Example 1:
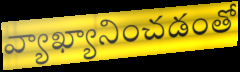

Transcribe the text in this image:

వ్యాఖ్యానించడంతో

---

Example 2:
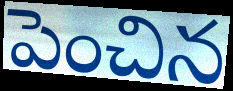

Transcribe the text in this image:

పెంచిన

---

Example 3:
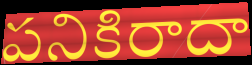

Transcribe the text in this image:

పనికిరాదా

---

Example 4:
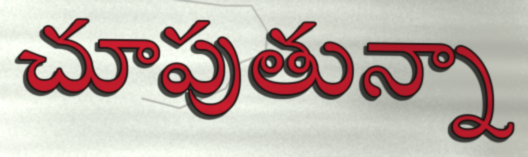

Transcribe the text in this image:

చూపుతున్నా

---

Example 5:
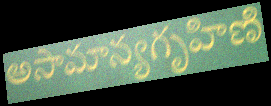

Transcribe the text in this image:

అసామాన్యగృహిణి